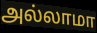
அல்லாமா